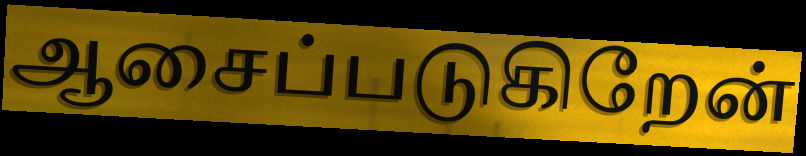
ஆசைப்படுகிறேன்